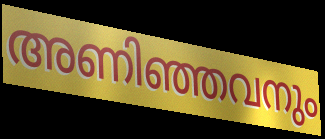
അണിഞ്ഞവനും